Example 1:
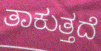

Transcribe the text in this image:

ತಾಕುತ್ತದೆ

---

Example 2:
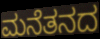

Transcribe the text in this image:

ಮನೆತನದ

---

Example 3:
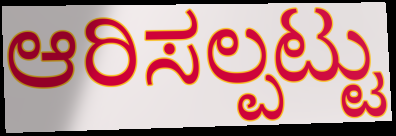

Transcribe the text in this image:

ಆರಿಸಲ್ಪಟ್ಟು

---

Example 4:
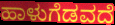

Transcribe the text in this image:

ಹಾಳುಗೆಡವದೆ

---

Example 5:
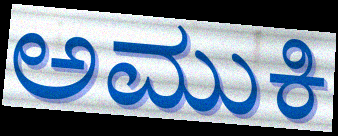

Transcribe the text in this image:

ಅಮುಕಿ